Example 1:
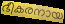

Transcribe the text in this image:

ഭീകരനായ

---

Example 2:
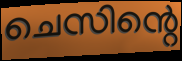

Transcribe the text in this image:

ചെസിന്റെ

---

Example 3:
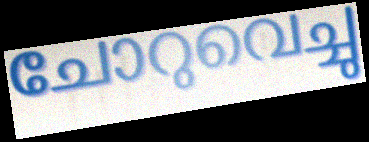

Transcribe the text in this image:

ചോറുവെച്ചു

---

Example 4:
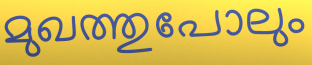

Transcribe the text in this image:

മുഖത്തുപോലും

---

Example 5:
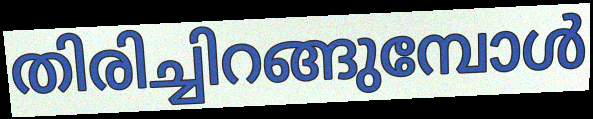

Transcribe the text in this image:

തിരിച്ചിറങ്ങുമ്പോൾ